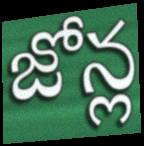
జోన్ల